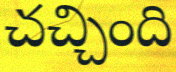
చచ్చింది